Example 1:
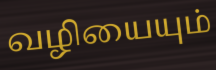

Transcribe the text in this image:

வழியையும்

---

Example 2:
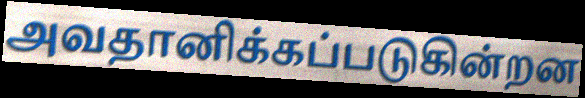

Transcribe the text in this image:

அவதானிக்கப்படுகின்றன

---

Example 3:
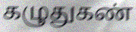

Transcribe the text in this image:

கழுதுகண்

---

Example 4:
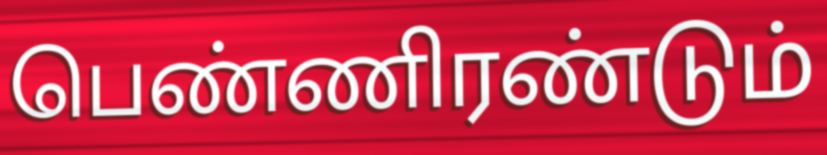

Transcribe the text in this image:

பெண்ணிரண்டும்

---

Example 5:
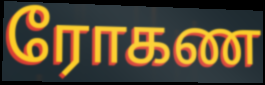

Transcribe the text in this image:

ரோகண